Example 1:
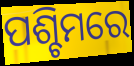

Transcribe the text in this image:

ପଶ୍ଚିମରେ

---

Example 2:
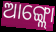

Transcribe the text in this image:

ଆଙ୍ଗ୍ଲୋ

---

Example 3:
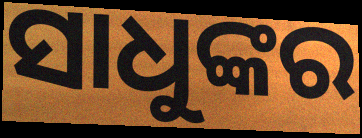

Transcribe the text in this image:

ସାଧୁଙ୍କର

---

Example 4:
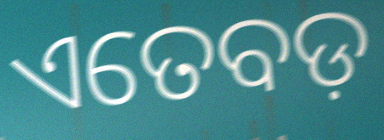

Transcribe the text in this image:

ଏତେବଡ଼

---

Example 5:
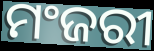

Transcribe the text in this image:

ମଂଜରୀ